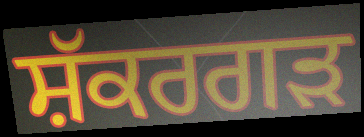
ਸ਼ੱਕਰਗੜ